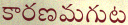
కారణమగుట